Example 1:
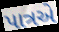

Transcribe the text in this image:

પાત્રએ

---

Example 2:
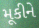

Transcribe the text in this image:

મૂકીને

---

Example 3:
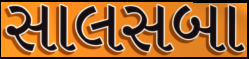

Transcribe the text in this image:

સાલસબા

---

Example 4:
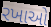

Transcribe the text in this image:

રખાઓ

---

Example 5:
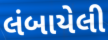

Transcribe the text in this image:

લંબાયેલી